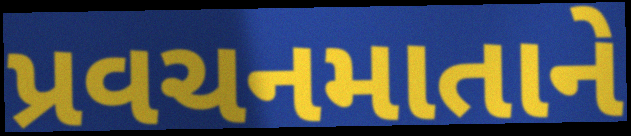
પ્રવચનમાતાને